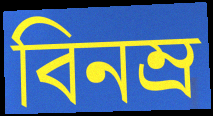
বিনম্ৰ